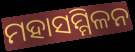
ମହାସମ୍ମିଳନ